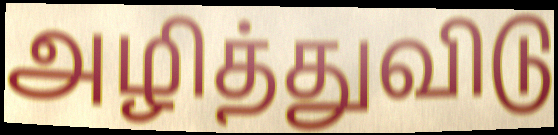
அழித்துவிடு